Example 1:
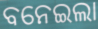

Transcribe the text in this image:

ବନେଇଲା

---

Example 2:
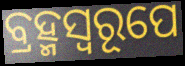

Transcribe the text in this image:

ବ୍ରହ୍ମସ୍ୱରୂପେ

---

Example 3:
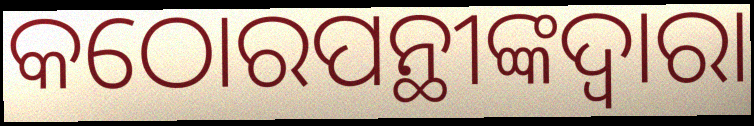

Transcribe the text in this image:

କଠୋରପନ୍ଥୀଙ୍କଦ୍ୱାରା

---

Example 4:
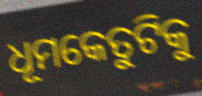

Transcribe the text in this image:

ଧୂମକେତୁଟିକୁ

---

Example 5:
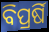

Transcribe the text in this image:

ବିପ୍ରର୍ଷି